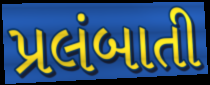
પ્રલંબાતી